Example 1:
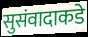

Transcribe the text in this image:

सुसंवादाकडे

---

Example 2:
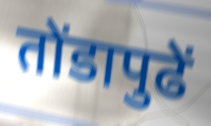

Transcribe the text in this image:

तोंडापुढें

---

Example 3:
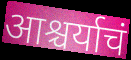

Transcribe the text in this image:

आश्चर्याचं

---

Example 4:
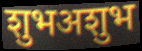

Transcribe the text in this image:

शुभअशुभ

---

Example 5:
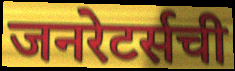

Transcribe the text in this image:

जनरेटर्सची